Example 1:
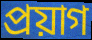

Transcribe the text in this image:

প্ৰয়াগ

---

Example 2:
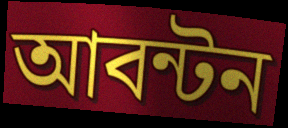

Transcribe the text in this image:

আবন্টন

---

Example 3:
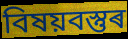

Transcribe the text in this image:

বিষয়বস্তুৰ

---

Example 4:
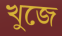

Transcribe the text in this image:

খুজে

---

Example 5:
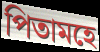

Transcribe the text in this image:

পিতামহে